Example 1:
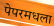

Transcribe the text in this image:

पेपरमधला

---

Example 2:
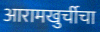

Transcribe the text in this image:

आरामखुर्चीचा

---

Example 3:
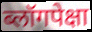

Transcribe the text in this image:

ब्लॉगपेक्षा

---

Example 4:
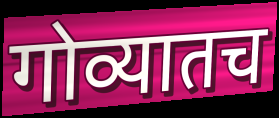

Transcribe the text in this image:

गोव्यातच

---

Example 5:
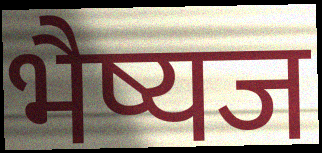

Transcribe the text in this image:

भैष्यज